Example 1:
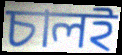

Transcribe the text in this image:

চালই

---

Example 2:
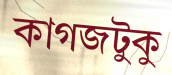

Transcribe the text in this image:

কাগজটুকু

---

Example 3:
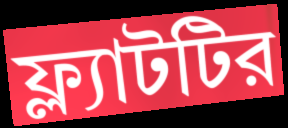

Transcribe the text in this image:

ফ্ল্যাটটির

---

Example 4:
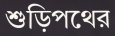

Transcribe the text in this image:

শুড়িপথের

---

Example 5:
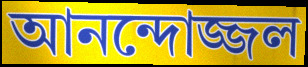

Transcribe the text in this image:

আনন্দোজ্জল